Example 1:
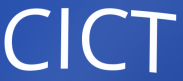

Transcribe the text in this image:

CICT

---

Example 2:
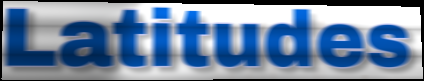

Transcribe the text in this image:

Latitudes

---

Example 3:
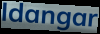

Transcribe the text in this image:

Idangar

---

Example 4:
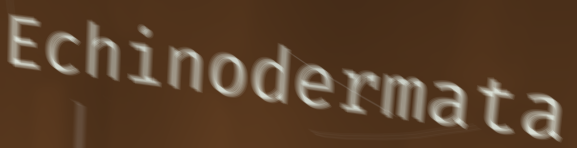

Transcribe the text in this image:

Echinodermata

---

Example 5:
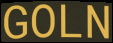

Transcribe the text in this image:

GOLN